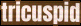
tricuspid